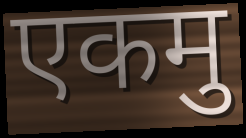
एकमु